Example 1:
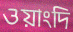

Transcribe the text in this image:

ওয়াংদি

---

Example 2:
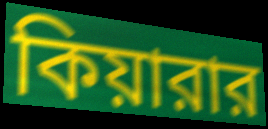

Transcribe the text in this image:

কিয়ারার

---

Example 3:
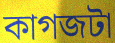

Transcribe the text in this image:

কাগজটা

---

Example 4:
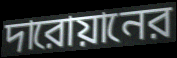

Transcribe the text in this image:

দারোয়ানের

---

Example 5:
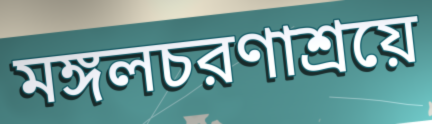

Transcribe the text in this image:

মঙ্গলচরণাশ্রয়ে